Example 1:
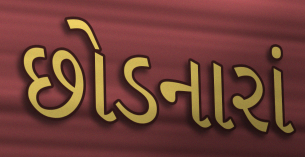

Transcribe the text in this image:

છોડનારાં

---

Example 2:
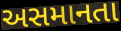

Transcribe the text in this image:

અસમાનતા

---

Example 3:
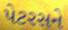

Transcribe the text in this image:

પેટરસને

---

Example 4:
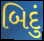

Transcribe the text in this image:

બિદું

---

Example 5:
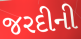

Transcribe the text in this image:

જરદીની